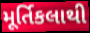
મૂર્તિકલાથી